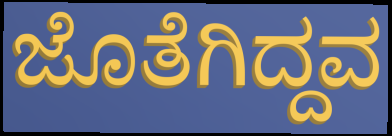
ಜೊತೆಗಿದ್ದವ